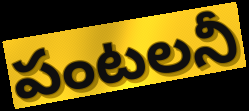
పంటలనీ